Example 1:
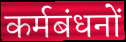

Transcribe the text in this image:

कर्मबंधनों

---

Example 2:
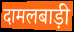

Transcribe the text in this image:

दामलबाड़ी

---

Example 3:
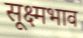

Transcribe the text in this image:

सूक्ष्मभाव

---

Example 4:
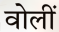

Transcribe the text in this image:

वोलीं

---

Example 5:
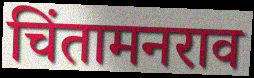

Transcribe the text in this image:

चिंतामनराव